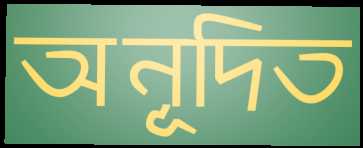
অনূদিত